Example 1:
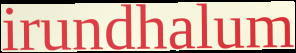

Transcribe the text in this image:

irundhalum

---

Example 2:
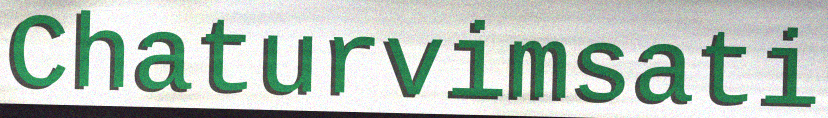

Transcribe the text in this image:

Chaturvimsati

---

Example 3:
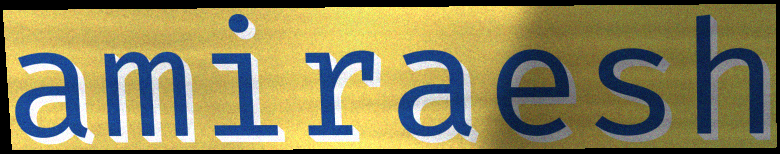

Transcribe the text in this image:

amiraesh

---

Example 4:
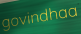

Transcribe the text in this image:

govindhaa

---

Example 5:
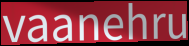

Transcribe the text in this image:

vaanehru